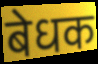
बेधक